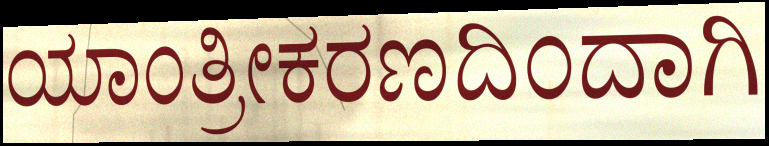
ಯಾಂತ್ರೀಕರಣದಿಂದಾಗಿ